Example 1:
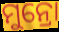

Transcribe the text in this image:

ମୁନ୍ରୋ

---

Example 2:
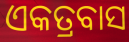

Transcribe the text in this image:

ଏକତ୍ରବାସ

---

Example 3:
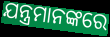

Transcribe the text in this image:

ଯନ୍ତ୍ରମାନଙ୍କରେ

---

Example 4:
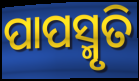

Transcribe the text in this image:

ପାପସ୍ମୃତି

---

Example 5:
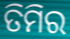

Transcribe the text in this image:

ତିମିର